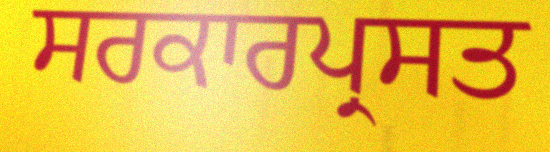
ਸਰਕਾਰਪ੍ਰਸਤ